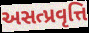
અસત્પ્રવૃત્તિ